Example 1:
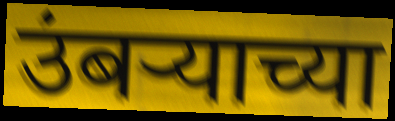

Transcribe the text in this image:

उंबऱ्याच्या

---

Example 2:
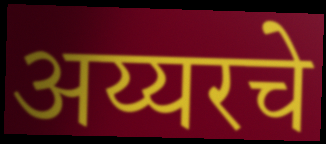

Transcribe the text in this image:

अय्यरचे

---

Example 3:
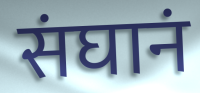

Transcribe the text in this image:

संघानं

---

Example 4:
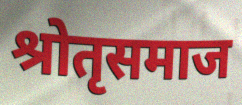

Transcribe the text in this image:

श्रोतृसमाज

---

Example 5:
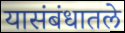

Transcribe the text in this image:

यासंबंधातले